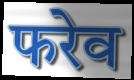
फरेव